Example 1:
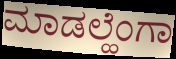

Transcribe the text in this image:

ಮಾಡಲ್ಹೆಂಗಾ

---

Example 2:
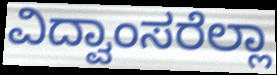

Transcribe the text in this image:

ವಿದ್ವಾಂಸರೆಲ್ಲಾ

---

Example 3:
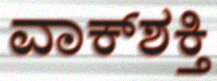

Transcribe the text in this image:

ವಾಕ್‌ಶಕ್ತಿ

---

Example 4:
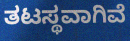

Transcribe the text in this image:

ತಟಸ್ಥವಾಗಿವೆ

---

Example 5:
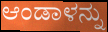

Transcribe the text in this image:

ಆಂಡಾಳನ್ನು